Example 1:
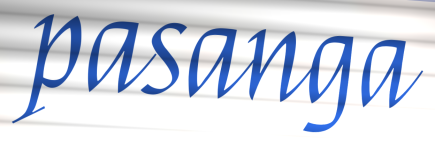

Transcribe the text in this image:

pasanga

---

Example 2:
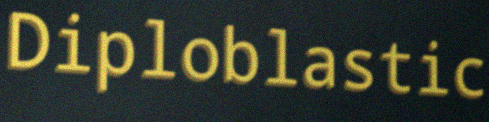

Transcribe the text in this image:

Diploblastic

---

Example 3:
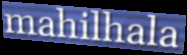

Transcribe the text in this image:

mahilhala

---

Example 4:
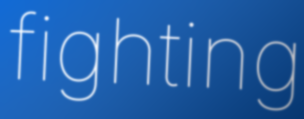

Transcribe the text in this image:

fighting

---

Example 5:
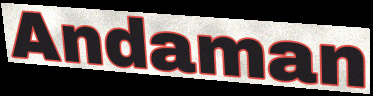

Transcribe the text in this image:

Andaman